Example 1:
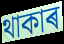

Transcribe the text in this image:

থাকাৰ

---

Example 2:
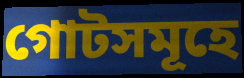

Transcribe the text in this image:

গোটসমূহে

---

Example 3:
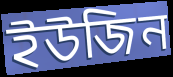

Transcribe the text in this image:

ইউজিন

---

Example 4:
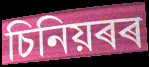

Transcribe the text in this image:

চিনিয়ৰৰ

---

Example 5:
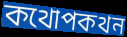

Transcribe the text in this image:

কথোপকথন